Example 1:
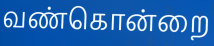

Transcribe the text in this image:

வண்கொன்றை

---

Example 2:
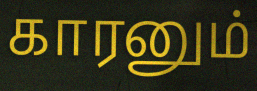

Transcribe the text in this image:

காரனும்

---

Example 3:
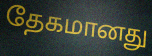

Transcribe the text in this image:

தேகமானது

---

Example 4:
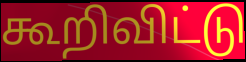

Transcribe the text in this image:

கூறிவிட்டு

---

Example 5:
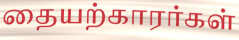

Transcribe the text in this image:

தையற்காரர்கள்